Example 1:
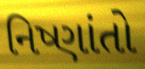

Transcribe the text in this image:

નિષ્ણાંતો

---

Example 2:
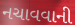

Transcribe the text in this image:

નચાવવાની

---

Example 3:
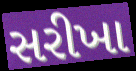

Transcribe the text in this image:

સરીખા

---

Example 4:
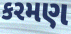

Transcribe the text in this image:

કરમણ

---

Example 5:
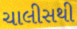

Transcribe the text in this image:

ચાલીસથી